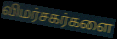
விமர்சகர்களை